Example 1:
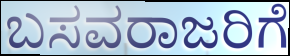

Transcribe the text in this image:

ಬಸವರಾಜರಿಗೆ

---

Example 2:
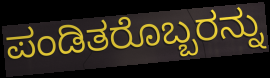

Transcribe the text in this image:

ಪಂಡಿತರೊಬ್ಬರನ್ನು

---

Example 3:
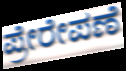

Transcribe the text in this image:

ಪ್ರೇರೇಪಣೆ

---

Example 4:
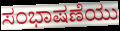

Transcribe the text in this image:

ಸಂಭಾಷಣೆಯು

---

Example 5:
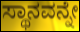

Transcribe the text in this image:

ಸ್ಥಾನವನ್ನೇ